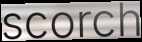
scorch